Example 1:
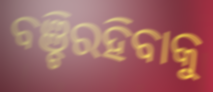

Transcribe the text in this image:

ବଞ୍ଚିରହିବାକୁ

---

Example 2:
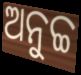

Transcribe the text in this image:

ଅନୁଚ୍ଚ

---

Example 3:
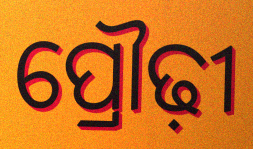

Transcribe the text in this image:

ପ୍ରୌଢ଼ୀ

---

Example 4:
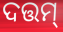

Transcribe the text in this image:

ଦତ୍ତମ୍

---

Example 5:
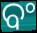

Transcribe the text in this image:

ବଂ